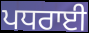
ਪਧਰਾਈ